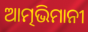
ଆତ୍ମଭିମାନୀ